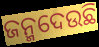
ଜନ୍ମଦେଉଛି